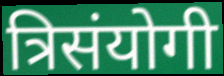
त्रिसंयोगी